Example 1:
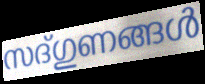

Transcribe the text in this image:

സദ്ഗുണങ്ങൾ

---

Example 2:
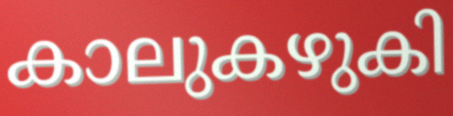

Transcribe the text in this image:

കാലുകഴുകി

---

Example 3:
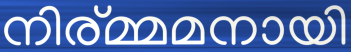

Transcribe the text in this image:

നിര്മ്മമനായി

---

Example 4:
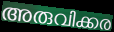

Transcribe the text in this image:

അരുവിക്കര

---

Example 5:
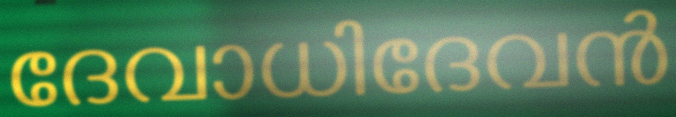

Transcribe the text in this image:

ദേവാധിദേവൻ